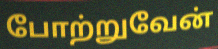
போற்றுவேன்